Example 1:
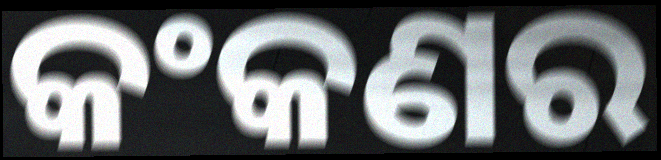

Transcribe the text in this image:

କଂକଣର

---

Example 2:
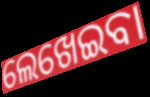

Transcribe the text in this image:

ଲେଖେଇବା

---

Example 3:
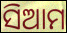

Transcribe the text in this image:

ସିଆମ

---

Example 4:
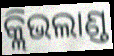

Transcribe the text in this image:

କ୍ଲିଭଲାଣ୍ଡ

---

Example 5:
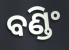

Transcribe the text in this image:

ବଣ୍ଡିଂ